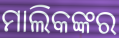
ମାଲିକଙ୍କର